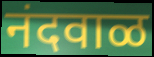
नंदवाळ